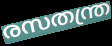
രസതന്ത്ര